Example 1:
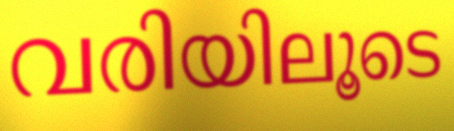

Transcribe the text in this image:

വരിയിലൂടെ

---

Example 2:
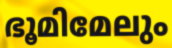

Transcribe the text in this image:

ഭൂമിമേലും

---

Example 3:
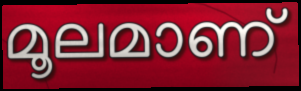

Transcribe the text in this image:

മൂലമാണ്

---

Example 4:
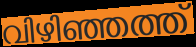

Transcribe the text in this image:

വിഴിഞ്ഞത്ത്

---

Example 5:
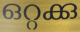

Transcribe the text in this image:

ഒറ്റക്കു